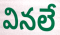
వినలే